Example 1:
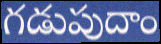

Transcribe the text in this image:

గడుపుదాం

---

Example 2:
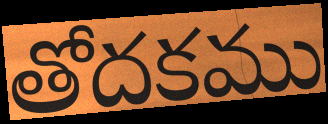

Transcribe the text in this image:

తోదకము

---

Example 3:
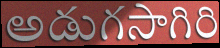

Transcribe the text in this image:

అడుగసాగిరి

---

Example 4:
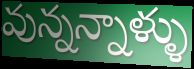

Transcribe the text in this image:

వున్నన్నాళ్ళు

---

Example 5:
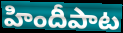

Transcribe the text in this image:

హిందీపాట